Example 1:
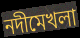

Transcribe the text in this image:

নদীমেখলা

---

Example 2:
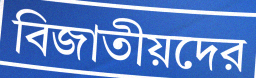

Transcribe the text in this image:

বিজাতীয়দের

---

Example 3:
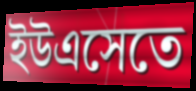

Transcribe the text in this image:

ইউএসেতে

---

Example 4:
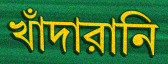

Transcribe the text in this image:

খাঁদারানি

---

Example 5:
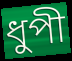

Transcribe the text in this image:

ধুপী